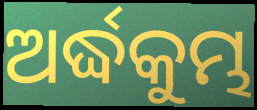
ଅର୍ଦ୍ଧକୁମ୍ଭ